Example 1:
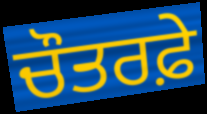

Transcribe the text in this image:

ਚੌਤਰਫ਼ੇ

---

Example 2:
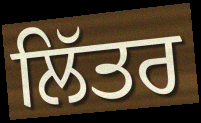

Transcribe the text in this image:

ਲਿੱਤਰ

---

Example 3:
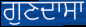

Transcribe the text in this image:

ਗੁਣਦਾਸਾ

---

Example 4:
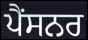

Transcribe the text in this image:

ਪੈਂਸਨਰ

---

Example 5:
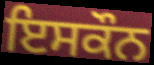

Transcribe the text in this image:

ਇਸਕੌਨ